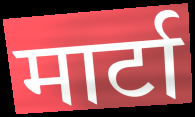
मार्टा